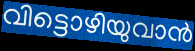
വിട്ടൊഴിയുവാൻ